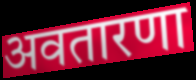
अवतारणा